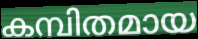
കമ്പിതമായ